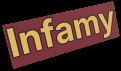
Infamy